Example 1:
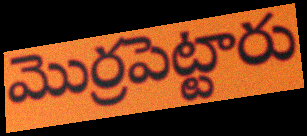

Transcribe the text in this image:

మొర్రపెట్టారు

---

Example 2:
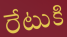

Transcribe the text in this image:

రేటుకి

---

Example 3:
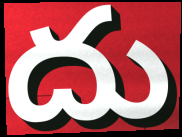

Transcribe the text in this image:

దు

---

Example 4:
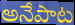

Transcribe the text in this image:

అనేపాట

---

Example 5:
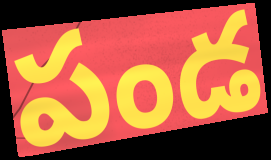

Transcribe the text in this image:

పండ